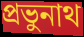
প্রভুনাথ